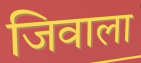
जिवाला